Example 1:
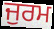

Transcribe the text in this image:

ਜੁਰਮ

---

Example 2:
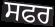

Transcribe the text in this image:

ਸਫਰ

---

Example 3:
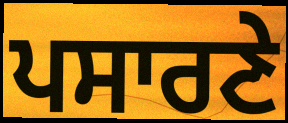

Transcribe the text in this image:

ਪਸਾਰਣੇ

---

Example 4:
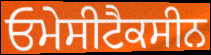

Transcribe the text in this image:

ਓਮੇਸੀਟੈਕਸੀਨ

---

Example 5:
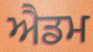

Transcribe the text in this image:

ਐਡਮ